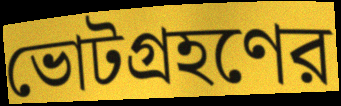
ভোটগ্রহণের